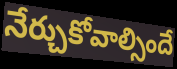
నేర్చుకోవాల్సిందే